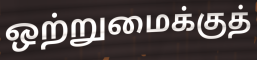
ஒற்றுமைக்குத்